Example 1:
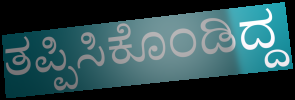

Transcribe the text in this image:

ತಪ್ಪಿಸಿಕೊಂಡಿದ್ದ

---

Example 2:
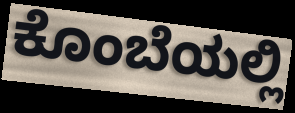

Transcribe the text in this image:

ಕೊಂಬೆಯಲ್ಲಿ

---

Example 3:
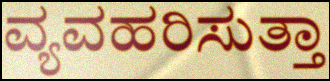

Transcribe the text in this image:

ವ್ಯವಹರಿಸುತ್ತಾ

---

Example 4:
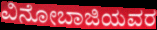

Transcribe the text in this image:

ವಿನೋಬಾಜಿಯವರ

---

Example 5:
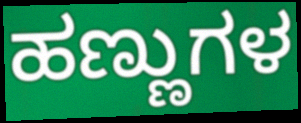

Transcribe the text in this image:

ಹಣ್ಣುಗಳ